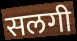
सलगी